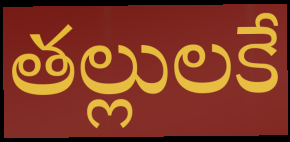
తల్లులకే